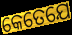
କେତେଯେ